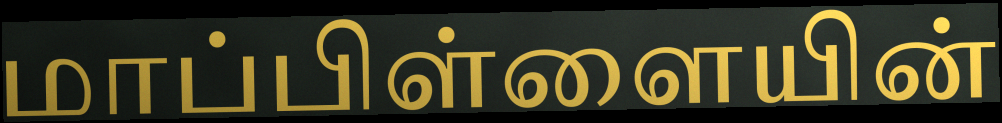
மாப்பிள்ளையின்